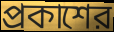
প্রকাশের